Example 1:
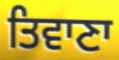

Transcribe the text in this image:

ਤਿਵਾਣਾ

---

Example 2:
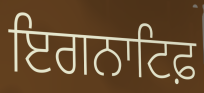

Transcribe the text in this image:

ਇਗਨਾਟਿਫ਼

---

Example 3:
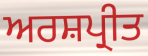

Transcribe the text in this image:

ਅਰਸ਼ਪ੍ਰੀਤ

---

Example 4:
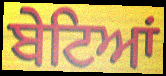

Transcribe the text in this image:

ਬੇਟਿਆਂ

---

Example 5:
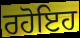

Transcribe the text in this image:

ਰਹੋਇਹ